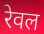
रेवल